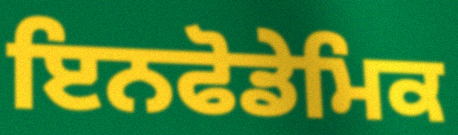
ਇਨਫੋਡੇਮਿਕ